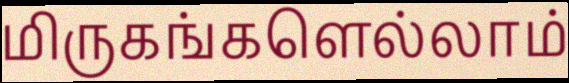
மிருகங்களெல்லாம்